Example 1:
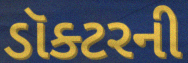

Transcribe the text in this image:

ડૉક્ટરની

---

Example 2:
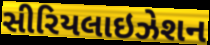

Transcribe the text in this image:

સીરિયલાઇઝેશન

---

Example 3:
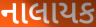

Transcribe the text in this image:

નાલાયક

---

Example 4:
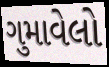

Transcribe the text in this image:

ગુમાવેલો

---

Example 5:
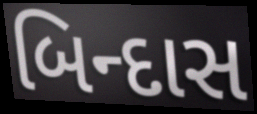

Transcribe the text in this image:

બિન્દાસ